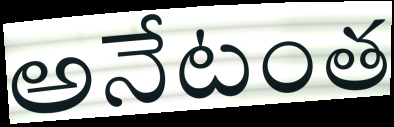
అనేటంత